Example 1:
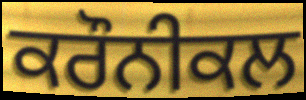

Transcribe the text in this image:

ਕਰੌਨੀਕਲ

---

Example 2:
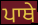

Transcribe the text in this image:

ਪਾਥੇ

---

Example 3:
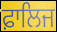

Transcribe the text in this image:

ਫ਼ਾਲਿਜ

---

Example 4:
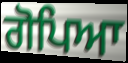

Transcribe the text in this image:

ਗੋਪਿਆ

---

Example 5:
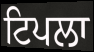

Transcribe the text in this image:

ਟਿਪਲਾ